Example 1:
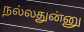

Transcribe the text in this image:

நல்லதுன்னு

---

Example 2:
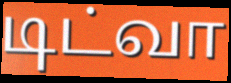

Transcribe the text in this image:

டிட்வா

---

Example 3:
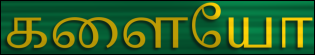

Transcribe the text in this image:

களையோ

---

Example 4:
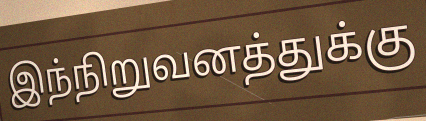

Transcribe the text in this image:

இந்நிறுவனத்துக்கு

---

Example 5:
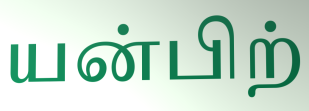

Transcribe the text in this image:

யன்பிற்